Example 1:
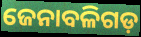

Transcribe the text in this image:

ଜେନାବଳିଗଡ଼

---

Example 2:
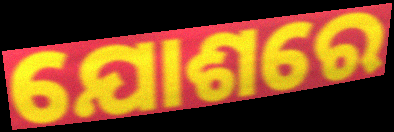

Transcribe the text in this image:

ଯୋଶରେ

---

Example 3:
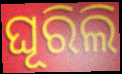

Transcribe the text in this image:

ଘୂରିଲି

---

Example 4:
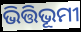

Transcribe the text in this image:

ଭିତ୍ତିଭୂମୀ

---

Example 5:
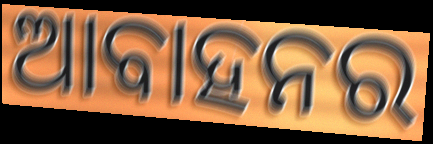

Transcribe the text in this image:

ଆବାହନର